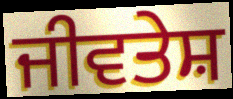
ਜੀਵਤੇਸ਼